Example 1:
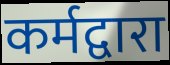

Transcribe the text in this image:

कर्मद्वारा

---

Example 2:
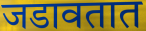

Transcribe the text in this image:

जडावतात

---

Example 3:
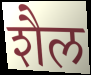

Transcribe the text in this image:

शैल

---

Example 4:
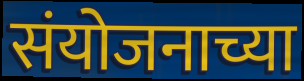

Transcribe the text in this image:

संयोजनाच्या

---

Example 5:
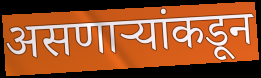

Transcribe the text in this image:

असणाऱ्यांकडून